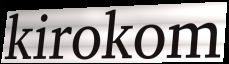
kirokom